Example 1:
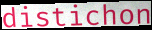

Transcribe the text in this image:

distichon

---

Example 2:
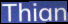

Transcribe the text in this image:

Thian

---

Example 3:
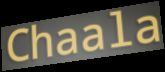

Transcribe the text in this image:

Chaala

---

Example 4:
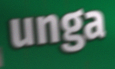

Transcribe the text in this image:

unga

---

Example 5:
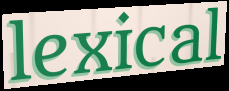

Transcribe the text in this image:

lexical